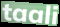
taali